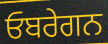
ਓਬਰੇਗਨ